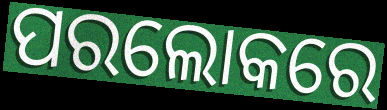
ପରଲୋକରେ